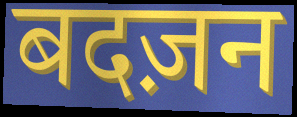
बदज़न